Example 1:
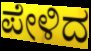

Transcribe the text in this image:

ಪೇಳಿದ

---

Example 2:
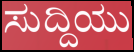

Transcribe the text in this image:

ಸುದ್ದಿಯು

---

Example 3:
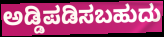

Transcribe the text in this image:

ಅಡ್ಡಿಪಡಿಸಬಹುದು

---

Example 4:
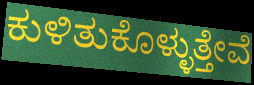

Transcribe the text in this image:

ಕುಳಿತುಕೊಳ್ಳುತ್ತೇವೆ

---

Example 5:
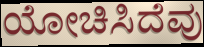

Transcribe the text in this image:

ಯೋಚಿಸಿದೆವು